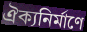
ঐক্যনির্মাণে